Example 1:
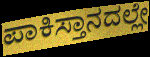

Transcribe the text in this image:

ಪಾಕಿಸ್ತಾನದಲ್ಲೇ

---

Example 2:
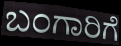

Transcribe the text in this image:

ಬಂಗಾರಿಗೆ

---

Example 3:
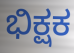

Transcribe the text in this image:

ಭಿಕ್ಷಕ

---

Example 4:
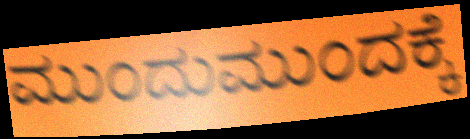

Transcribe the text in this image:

ಮುಂದುಮುಂದಕ್ಕೆ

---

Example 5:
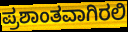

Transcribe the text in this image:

ಪ್ರಶಾಂತವಾಗಿರಲಿ